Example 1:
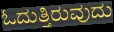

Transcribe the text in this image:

ಓದುತ್ತಿರುವುದು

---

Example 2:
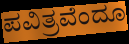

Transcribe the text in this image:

ಪವಿತ್ರವೆಂದೂ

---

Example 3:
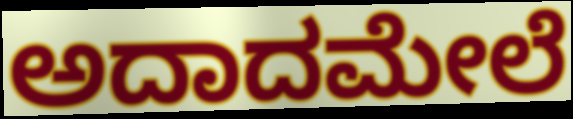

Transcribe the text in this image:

ಅದಾದಮೇಲೆ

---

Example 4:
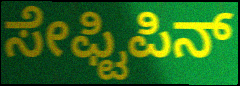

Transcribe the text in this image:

ಸೇಫ್ಟಿಪಿನ್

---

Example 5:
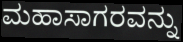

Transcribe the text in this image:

ಮಹಾಸಾಗರವನ್ನು